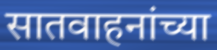
सातवाहनांच्या